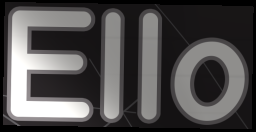
Ello